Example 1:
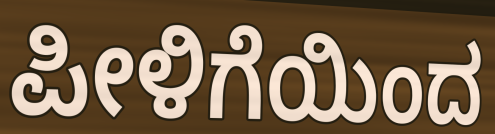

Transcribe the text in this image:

ಪೀಳಿಗೆಯಿಂದ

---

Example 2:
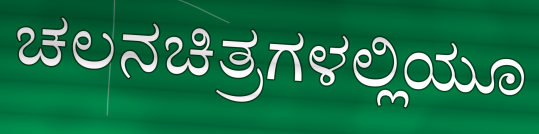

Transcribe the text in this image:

ಚಲನಚಿತ್ರಗಳಲ್ಲಿಯೂ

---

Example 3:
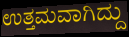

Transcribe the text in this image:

ಉತ್ತಮವಾಗಿದ್ದು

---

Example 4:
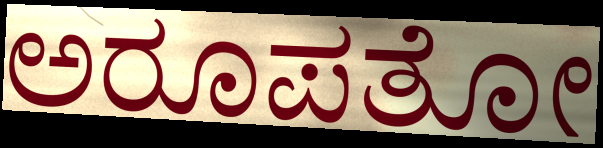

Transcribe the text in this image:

ಅರೂಪತೋ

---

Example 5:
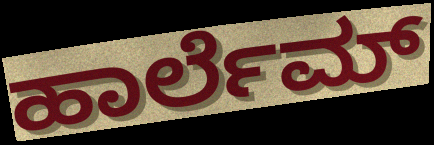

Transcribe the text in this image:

ಹಾರ್ಲೆಮ್